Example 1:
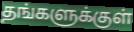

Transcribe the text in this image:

தங்களுக்குள்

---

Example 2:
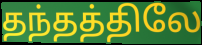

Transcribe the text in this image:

தந்தத்திலே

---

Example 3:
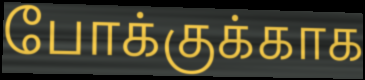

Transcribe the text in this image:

போக்குக்காக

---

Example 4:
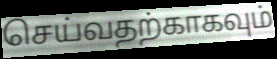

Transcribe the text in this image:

செய்வதற்காகவும்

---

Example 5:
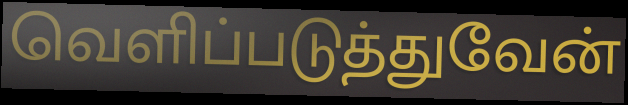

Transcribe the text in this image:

வெளிப்படுத்துவேன்